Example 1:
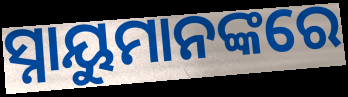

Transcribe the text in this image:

ସ୍ନାୟୁମାନଙ୍କରେ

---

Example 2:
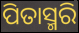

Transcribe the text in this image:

ପିତାସ୍ମରି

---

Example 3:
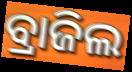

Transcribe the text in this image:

ବ୍ରାଜିଲ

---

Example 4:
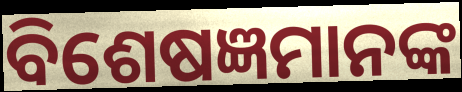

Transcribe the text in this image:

ବିଶେଷଜ୍ଞମାନଙ୍କ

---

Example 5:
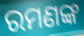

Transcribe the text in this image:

ରମଣଙ୍କ